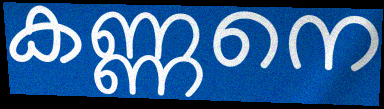
കണ്ണനെ